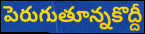
పెరుగుతూన్నకొద్దీ